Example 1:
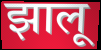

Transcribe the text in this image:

झालू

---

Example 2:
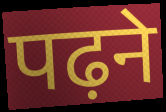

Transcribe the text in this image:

पढ़ने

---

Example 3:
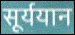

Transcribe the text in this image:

सूर्ययान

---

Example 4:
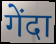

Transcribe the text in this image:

गेंदा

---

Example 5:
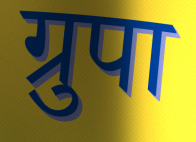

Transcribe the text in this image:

ग्रुपा